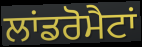
ਲਾਂਡਰੋਮੈਟਾਂ